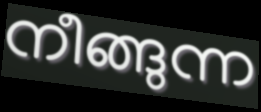
നീങ്ങുന്ന